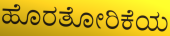
ಹೊರತೋರಿಕೆಯ